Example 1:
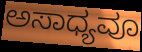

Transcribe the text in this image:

ಅಸಾಧ್ಯವೂ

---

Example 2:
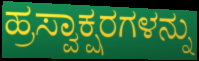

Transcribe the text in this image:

ಹ್ರಸ್ವಾಕ್ಷರಗಳನ್ನು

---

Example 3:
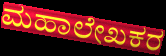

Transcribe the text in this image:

ಮಹಾಲೇಖಕರ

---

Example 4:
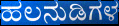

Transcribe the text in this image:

ಹಲನುಡಿಗಳ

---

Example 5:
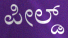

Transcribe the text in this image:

ಪೀಲ್ಡ್